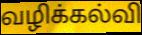
வழிக்கல்வி